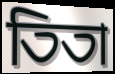
তিতা